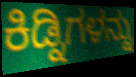
ಕಿಡ್ನಿಗಳನ್ನು